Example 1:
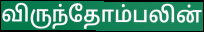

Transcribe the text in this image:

விருந்தோம்பலின்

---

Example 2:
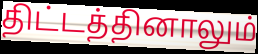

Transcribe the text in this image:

திட்டத்தினாலும்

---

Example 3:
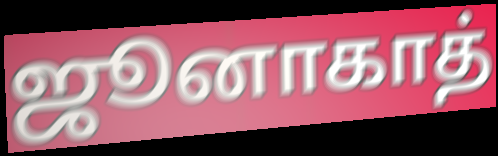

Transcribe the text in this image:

ஜூனாகாத்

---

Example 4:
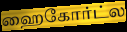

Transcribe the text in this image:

ஹைகோர்ட்ல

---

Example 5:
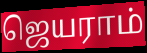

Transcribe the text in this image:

ஜெயராம்